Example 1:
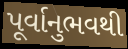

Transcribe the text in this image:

પૂર્વાનુભવથી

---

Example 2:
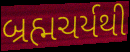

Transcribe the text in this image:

બ્રહ્મચર્યથી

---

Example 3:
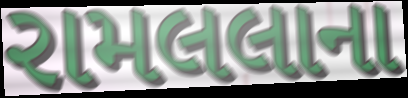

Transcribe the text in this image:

રામલલાના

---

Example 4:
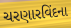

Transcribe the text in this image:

ચરણારવિંદના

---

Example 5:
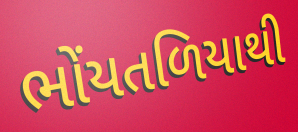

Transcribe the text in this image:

ભોંયતળિયાથી